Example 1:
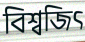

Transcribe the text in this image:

বিশ্বজিৎ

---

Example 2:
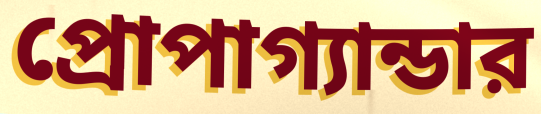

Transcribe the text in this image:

প্রোপাগ্যান্ডার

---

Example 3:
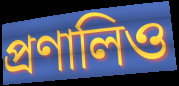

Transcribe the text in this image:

প্রণালিও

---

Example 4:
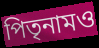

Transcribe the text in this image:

পিতৃনামও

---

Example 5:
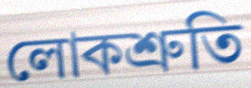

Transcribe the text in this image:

লোকশ্রুতি